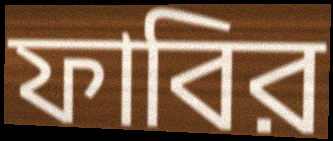
ফাবির